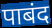
पाबंद